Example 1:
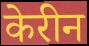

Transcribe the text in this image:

केरीन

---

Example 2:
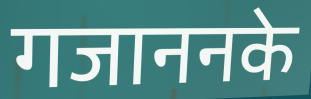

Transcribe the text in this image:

गजाननके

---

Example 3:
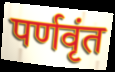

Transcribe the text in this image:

पर्णवृंत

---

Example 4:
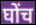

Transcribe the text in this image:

घोंच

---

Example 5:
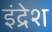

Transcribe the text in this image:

इंद्रेश